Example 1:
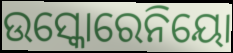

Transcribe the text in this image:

ଉସ୍କୋରେନିୟୋ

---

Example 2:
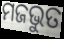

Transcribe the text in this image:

ମଜଭୁତ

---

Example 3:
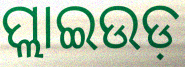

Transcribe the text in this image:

ପ୍ଲାଇଉଡ଼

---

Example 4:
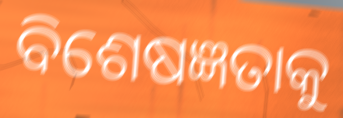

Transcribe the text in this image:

ବିଶେଷଜ୍ଞତାକୁ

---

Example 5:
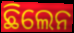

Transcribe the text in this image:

ଛିଲେନ